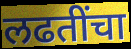
लढतींचा